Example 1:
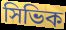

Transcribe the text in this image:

সিভিক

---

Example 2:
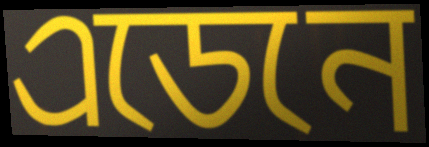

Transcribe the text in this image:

এডেনে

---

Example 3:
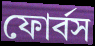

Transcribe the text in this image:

ফোর্বস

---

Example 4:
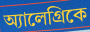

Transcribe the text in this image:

অ্যালেগ্রিকে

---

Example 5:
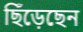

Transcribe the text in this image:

ছিঁড়েছেন